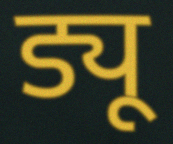
ड्यू